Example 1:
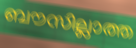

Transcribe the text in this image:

ബൗസില്ലാത്ത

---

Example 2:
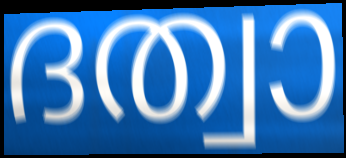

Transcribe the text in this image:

ദത്വാ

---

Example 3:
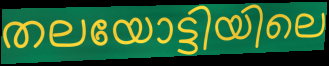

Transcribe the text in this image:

തലയോട്ടിയിലെ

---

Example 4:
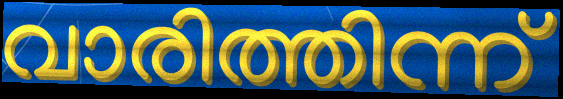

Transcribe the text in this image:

വാരിത്തിന്ന്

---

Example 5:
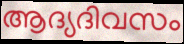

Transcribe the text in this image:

ആദ്യദിവസം